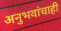
अनुभवांचाही